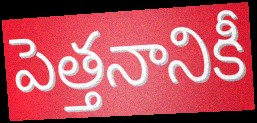
పెత్తనానికీ